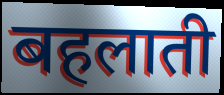
बहलाती